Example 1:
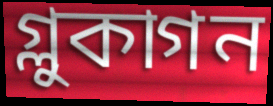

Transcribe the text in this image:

গ্লুকাগন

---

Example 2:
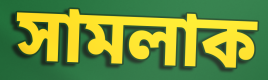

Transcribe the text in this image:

সামলাক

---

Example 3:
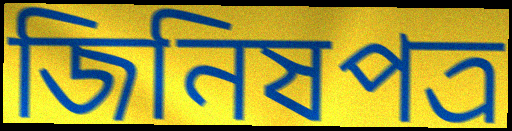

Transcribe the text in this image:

জিনিষপত্র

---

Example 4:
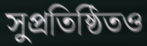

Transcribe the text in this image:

সুপ্রতিষ্ঠিতও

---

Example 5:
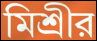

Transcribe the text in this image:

মিশ্রীর